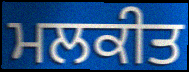
ਮਲਕੀਤ